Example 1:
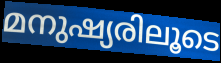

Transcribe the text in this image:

മനുഷ്യരിലൂടെ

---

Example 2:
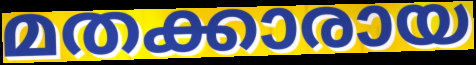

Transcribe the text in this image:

മതക്കാരായ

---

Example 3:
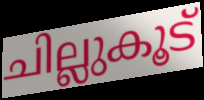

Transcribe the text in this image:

ചില്ലുകൂട്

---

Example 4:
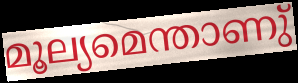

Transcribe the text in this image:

മൂല്യമെന്താണു്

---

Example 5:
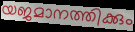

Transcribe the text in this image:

യജമാനത്തിക്കും